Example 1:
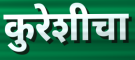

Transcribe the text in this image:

कुरेशीचा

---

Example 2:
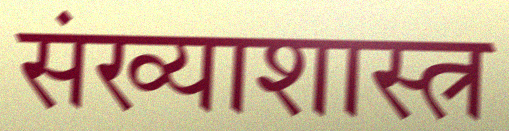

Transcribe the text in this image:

संख्याशास्त्र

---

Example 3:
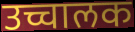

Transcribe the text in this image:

उच्चालक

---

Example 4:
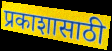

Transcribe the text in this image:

प्रकाशासाठी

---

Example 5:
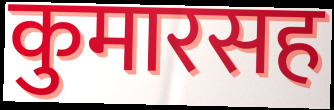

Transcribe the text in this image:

कुमारसह